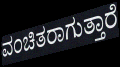
ವಂಚಿತರಾಗುತ್ತಾರೆ